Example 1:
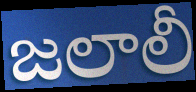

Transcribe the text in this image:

జలాలీ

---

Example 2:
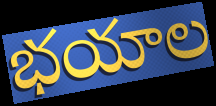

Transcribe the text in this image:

భయాల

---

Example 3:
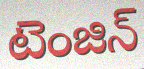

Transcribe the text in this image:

టెంజిన్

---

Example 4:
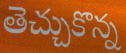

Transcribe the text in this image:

తెచ్చుకొన్న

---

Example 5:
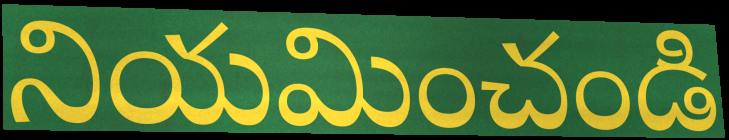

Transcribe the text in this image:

నియమించండి